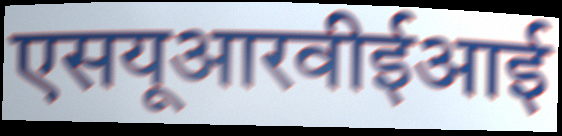
एसयूआरवीईआई